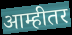
आम्हीतर